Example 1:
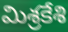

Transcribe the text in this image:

మిశ్రకేశి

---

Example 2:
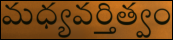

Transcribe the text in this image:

మధ్యవర్తిత్వం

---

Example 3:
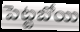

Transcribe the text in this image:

పెట్టబోయి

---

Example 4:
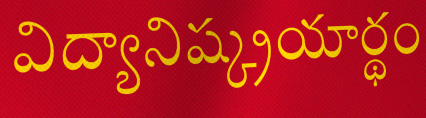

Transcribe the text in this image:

విద్యానిష్క్రయార్థం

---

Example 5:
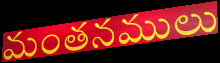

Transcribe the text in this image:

మంతనములు